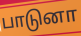
பாடுனா